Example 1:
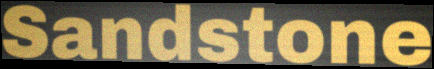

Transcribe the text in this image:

Sandstone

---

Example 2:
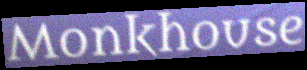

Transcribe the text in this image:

Monkhouse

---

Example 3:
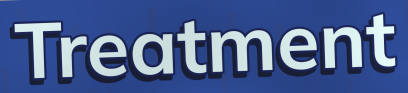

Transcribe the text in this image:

Treatment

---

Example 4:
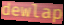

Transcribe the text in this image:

dewlap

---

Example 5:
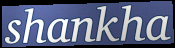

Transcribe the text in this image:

shankha